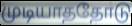
முடியாததோடு